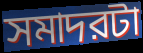
সমাদরটা